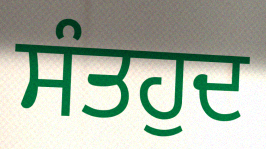
ਸੰਤਹੁਦ